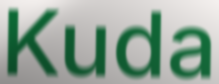
Kuda